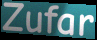
Zufar